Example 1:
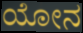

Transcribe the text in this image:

ಯೋನ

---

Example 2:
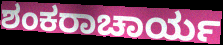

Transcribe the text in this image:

ಶಂಕರಾಚಾರ್ಯ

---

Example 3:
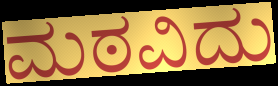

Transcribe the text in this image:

ಮಠವಿದು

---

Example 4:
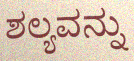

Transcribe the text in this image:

ಶಲ್ಯವನ್ನು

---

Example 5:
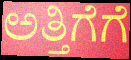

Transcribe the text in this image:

ಅತ್ತಿಗೆಗೆ